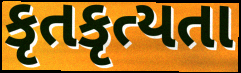
કૃતકૃત્યતા